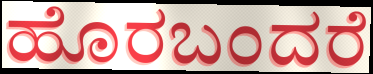
ಹೊರಬಂದರೆ